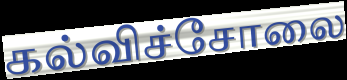
கல்விச்சோலை